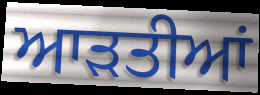
ਆਡ਼ਤੀਆਂ